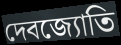
দেবজ্যোতি